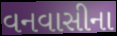
વનવાસીના